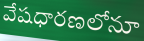
వేషధారణలోనూ